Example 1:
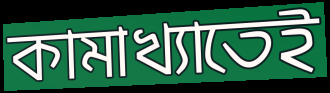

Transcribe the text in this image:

কামাখ্যাতেই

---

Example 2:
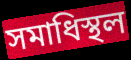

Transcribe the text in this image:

সমাধিস্থল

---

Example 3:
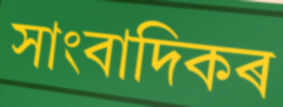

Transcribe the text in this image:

সাংবাদিকৰ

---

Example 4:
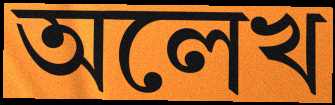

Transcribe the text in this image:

অলেখ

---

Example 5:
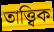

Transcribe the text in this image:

তাত্ত্বিক